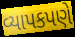
વ્યાપકપણે